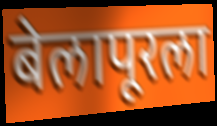
बेलापूरला